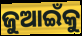
ଜୁଆଇଁକୁ